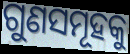
ଗୁଣସମୂହକୁ